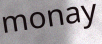
monay